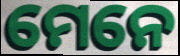
ମେନେ